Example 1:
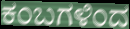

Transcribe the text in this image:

ಕಂಬಗಳಿಂದ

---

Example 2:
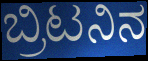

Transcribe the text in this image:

ಬ್ರಿಟನಿನ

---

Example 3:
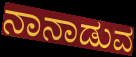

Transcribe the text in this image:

ನಾನಾಡುವ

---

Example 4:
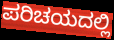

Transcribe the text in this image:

ಪರಿಚಯದಲ್ಲಿ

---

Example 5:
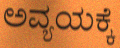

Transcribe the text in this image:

ಅವ್ಯಯಕ್ಕೆ